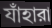
যাঁহারা